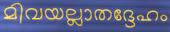
മിവയല്ലാതദ്ദേഹം